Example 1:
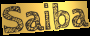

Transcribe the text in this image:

Saiba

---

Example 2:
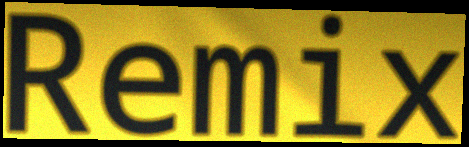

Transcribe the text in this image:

Remix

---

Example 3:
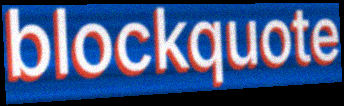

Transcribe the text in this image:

blockquote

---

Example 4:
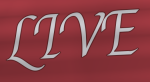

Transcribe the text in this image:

LIVE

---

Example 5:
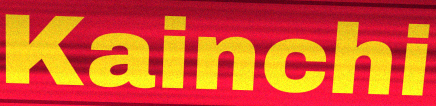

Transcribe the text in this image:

Kainchi